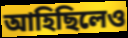
আহিছিলেও